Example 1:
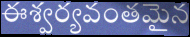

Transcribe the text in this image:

ఈశ్వర్యవంతమైన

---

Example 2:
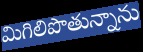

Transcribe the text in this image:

మిగిలిపొతున్నాను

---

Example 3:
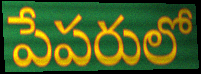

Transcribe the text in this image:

పేపరులో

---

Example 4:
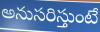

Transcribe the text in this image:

అనుసరిస్తుంటే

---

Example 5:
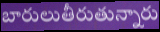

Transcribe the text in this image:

బారులుతీరుతున్నారు